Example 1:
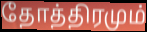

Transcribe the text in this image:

தோத்திரமும்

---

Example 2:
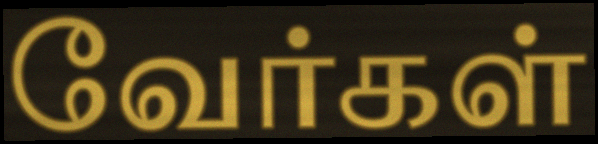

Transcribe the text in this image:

வேர்கள்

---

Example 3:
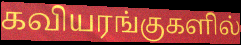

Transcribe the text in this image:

கவியரங்குகளில்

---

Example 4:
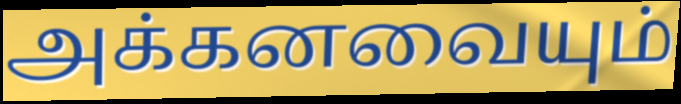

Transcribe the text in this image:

அக்கனவையும்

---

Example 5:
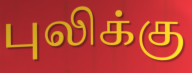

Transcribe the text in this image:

புலிக்கு